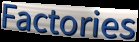
Factories